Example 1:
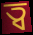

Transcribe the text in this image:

ত্ব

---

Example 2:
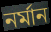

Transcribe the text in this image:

নর্মান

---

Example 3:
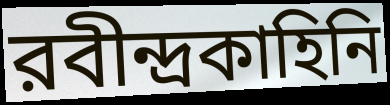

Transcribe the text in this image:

রবীন্দ্রকাহিনি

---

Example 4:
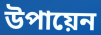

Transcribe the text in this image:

উপায়েন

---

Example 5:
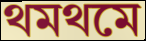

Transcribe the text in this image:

থমথমে